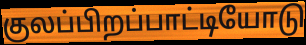
குலப்பிறப்பாட்டியோடு